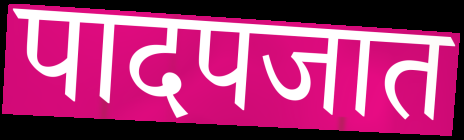
पादपजात